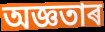
অজ্ঞতাৰ